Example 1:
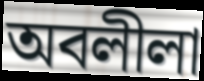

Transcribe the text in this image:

অবলীলা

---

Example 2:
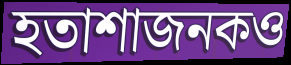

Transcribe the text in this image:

হতাশাজনকও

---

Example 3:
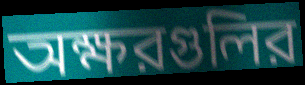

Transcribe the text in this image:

অক্ষরগুলির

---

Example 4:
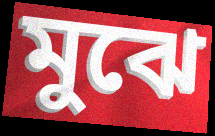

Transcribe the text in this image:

মুঝে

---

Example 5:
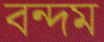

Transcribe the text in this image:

বন্দম